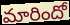
మారిందో